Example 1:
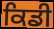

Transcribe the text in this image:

ਕਿਡੀ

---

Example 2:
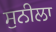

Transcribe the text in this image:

ਸੁਨੀਲਾ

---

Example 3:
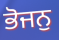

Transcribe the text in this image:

ਭੋਜਨੁ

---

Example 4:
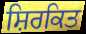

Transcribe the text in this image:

ਸ਼ਿਰਕਿਤ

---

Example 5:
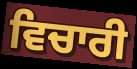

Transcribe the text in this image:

ਵਿਚਾਰੀ